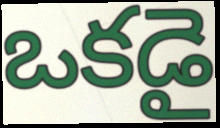
ఒకడై